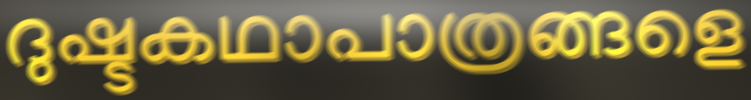
ദുഷ്ടകഥാപാത്രങ്ങളെ